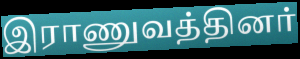
இராணுவத்தினர்